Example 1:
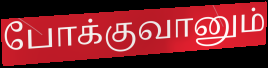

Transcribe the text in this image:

போக்குவானும்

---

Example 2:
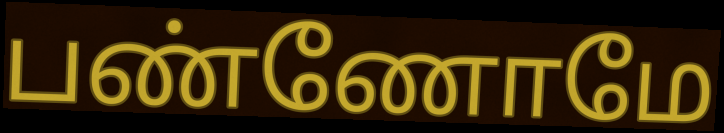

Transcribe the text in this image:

பண்ணோமே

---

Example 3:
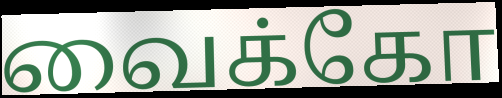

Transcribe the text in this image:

வைக்கோ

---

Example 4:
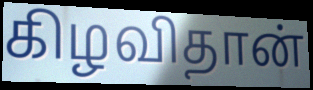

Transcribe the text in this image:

கிழவிதான்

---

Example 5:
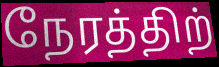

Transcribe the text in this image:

நேரத்திற்